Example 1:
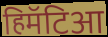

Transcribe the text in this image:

हिमॅटिआ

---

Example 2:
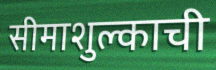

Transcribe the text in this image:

सीमाशुल्काची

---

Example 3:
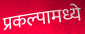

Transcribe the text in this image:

प्रकल्पामध्ये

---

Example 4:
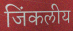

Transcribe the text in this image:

जिंकलीय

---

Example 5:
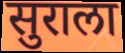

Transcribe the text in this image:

सुराला